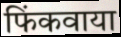
फिंकवाया